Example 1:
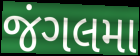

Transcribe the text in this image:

જંગલમા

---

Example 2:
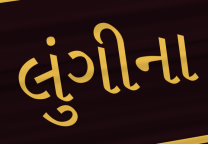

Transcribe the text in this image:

લુંગીના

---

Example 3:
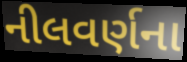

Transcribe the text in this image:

નીલવર્ણના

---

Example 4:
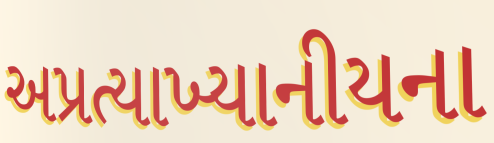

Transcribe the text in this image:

અપ્રત્યાખ્યાનીયના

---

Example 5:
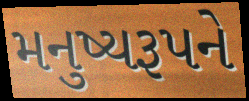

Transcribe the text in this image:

મનુષ્યરૂપને